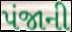
પંજાની